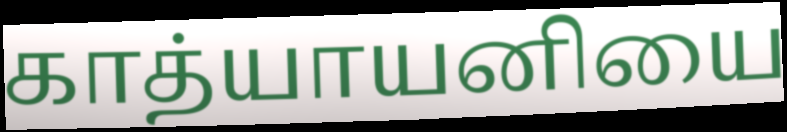
காத்யாயனியை